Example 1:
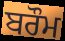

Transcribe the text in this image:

ਬਰੌਮ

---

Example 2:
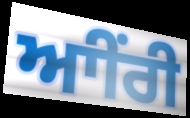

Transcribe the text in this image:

ਆੀਂਰੀ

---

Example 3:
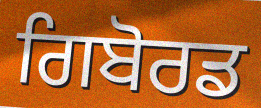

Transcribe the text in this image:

ਗਿਬੋਰਡ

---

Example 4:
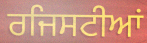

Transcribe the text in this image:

ਰਜਿਸਟੀਆਂ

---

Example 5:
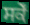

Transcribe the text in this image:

ਸਕੇਁ